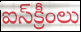
ఐస్‌క్రీంలు